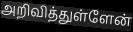
அறிவித்துள்ளேன்